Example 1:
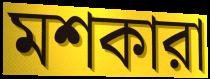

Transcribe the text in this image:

মশকারা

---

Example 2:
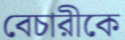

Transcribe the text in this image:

বেচারীকে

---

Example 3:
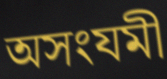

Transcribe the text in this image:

অসংযমী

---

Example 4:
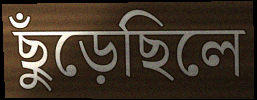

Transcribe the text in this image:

ছুঁড়েছিলে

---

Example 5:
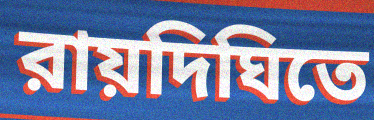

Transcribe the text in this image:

রায়দিঘিতে